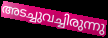
അടച്ചുവച്ചിരുന്നു